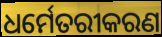
ଧର୍ମେତରୀକରଣ